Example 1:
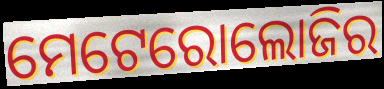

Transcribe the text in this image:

ମେଟେରୋଲୋଜିର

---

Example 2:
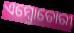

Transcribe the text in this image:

ଏମ୍ବ୍ରୋଡୋରୀ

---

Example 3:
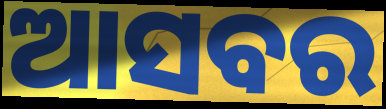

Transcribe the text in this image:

ଆସବର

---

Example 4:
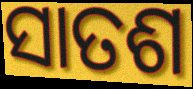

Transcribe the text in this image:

ସାତଶ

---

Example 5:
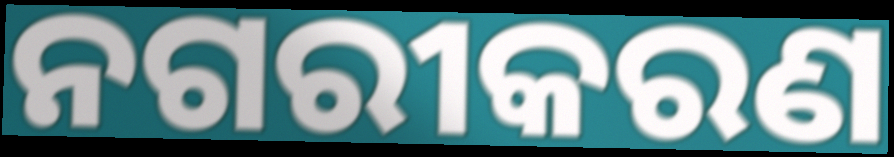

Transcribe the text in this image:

ନଗରୀକରଣ